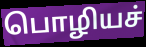
பொழியச்